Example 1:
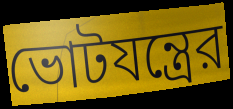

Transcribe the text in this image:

ভোটযন্ত্রের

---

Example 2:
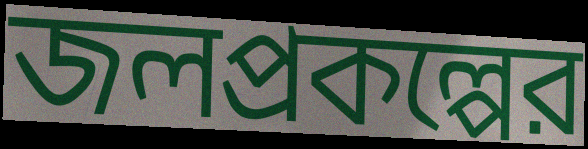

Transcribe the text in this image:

জলপ্রকল্পের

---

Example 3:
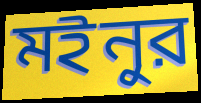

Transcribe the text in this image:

মইনুর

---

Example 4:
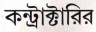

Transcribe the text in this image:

কন্ট্রাক্টারির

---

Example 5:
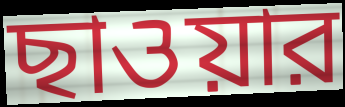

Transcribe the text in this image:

ছাওয়ার